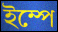
ইম্পে